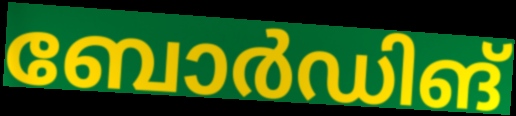
ബോർഡിങ്